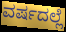
ವರ್ಷದಲ್ಲೆ